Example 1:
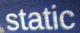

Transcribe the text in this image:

static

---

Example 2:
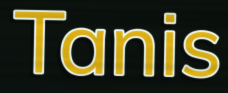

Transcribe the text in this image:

Tanis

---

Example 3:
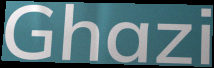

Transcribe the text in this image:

Ghazi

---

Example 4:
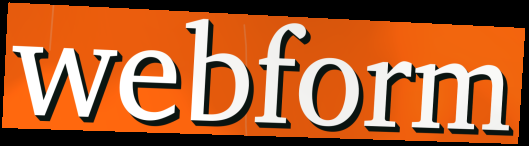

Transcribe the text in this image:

webform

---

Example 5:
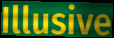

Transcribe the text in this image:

Illusive